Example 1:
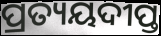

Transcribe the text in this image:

ପ୍ରତ୍ୟୟଦୀପ୍ତ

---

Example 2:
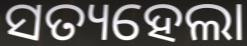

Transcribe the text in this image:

ସତ୍ୟହେଲା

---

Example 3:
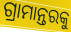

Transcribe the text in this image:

ଗ୍ରାମାନ୍ତରକୁ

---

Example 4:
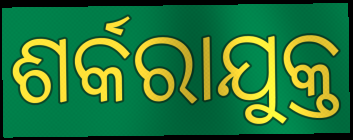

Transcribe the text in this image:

ଶର୍କରାଯୁକ୍ତ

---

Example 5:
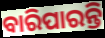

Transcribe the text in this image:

ବାରିପାରନ୍ତି